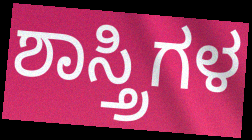
ಶಾಸ್ತ್ರಿಗಳ